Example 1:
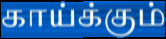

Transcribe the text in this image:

காய்க்கும்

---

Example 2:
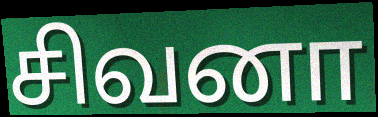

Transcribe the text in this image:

சிவனா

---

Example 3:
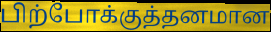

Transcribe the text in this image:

பிற்போக்குத்தனமான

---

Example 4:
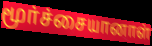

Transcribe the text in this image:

மூர்ச்சையானாள்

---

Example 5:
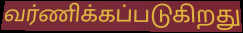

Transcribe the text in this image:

வர்ணிக்கப்படுகிறது